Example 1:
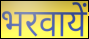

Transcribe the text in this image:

भरवायें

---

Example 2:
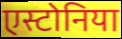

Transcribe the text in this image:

एस्टोनिया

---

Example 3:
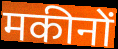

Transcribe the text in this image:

मकीनों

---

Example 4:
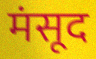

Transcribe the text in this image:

मंसूद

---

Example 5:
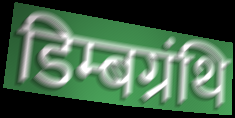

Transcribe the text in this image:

डिम्बग्रंथि